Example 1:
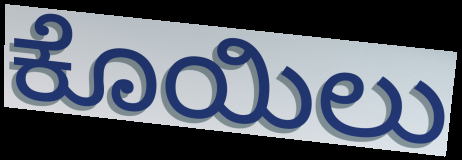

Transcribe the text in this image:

ಕೊಯಿಲು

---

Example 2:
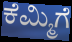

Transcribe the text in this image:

ಕೆಮ್ಮಿಗೆ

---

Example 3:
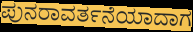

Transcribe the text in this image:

ಪುನರಾವರ್ತನೆಯಾದಾಗ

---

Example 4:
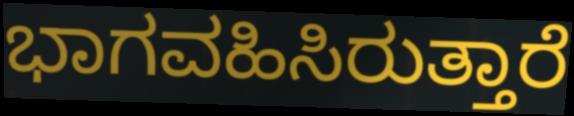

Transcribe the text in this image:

ಭಾಗವಹಿಸಿರುತ್ತಾರೆ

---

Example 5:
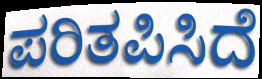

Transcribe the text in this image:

ಪರಿತಪಿಸಿದೆ